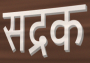
सद्रक